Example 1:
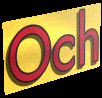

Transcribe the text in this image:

Och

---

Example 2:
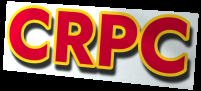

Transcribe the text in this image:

CRPC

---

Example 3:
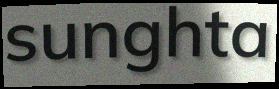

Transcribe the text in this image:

sunghta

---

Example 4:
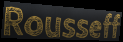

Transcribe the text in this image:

Rousseff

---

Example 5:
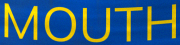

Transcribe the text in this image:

MOUTH